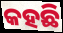
କହଛି